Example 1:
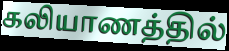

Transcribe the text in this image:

கலியாணத்தில்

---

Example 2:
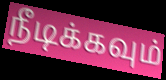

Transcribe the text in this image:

நீடிக்கவும்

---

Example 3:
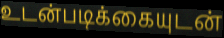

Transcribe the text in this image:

உடன்படிக்கையுடன்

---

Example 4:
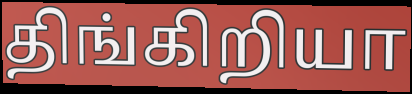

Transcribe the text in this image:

திங்கிறியா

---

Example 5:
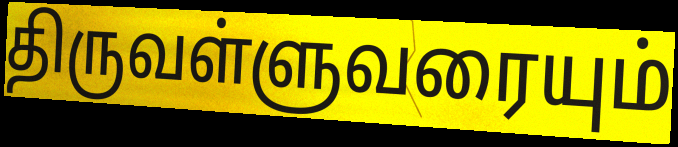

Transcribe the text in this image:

திருவள்ளுவரையும்